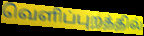
வெளிப்புறத்தில்